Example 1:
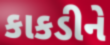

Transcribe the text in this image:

કાકડીને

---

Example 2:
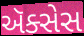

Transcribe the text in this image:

ઍક્સેસ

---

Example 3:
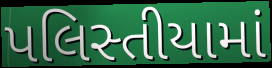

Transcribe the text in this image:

પલિસ્તીયામાં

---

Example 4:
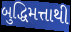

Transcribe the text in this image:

બુદ્ધિમત્તાથી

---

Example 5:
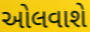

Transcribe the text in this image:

ઓલવાશે